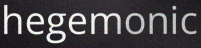
hegemonic